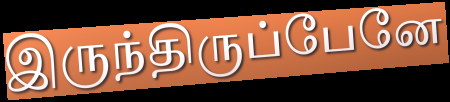
இருந்திருப்பேனே